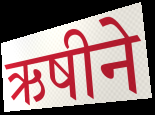
ऋषीने